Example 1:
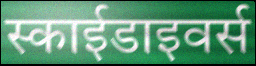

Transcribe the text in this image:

स्काईडाइवर्स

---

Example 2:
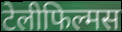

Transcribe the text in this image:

टेलीफिल्मस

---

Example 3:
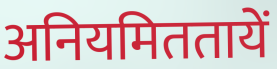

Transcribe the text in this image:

अनियमिततायें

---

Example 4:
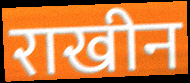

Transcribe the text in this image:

राखीन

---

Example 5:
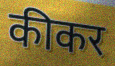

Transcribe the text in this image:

कीकर